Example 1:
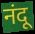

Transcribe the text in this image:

नंदू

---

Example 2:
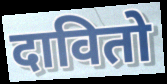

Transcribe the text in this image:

दावितो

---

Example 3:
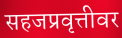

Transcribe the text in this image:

सहजप्रवृत्तीवर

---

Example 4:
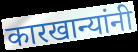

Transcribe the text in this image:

कारखान्यांनी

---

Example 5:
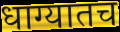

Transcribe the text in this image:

धाग्यातच